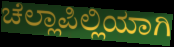
ಚೆಲ್ಲಾಪಿಲ್ಲಿಯಾಗಿ